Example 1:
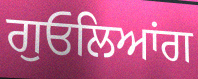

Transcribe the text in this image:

ਗੁਓਲਿਆਂਗ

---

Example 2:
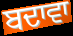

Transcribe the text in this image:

ਬਦਾਵਾ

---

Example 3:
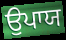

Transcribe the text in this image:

ਉਪਾਯ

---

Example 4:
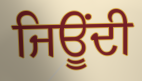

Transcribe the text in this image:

ਜਿਊਂਦੀ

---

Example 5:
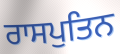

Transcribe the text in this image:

ਰਾਸਪੁਤਿਨ